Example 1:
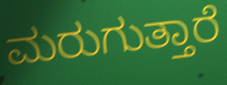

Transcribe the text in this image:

ಮರುಗುತ್ತಾರೆ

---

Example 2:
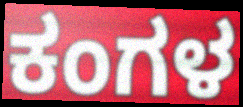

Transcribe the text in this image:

ಕಂಗಳ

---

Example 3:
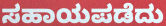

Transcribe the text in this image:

ಸಹಾಯಪಡೆದು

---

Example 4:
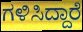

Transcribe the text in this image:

ಗಳಿಸಿದ್ದಾರೆ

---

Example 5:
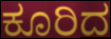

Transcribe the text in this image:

ಕೂರಿದ